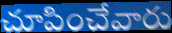
చూపించేవారు